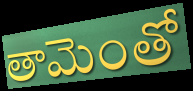
తామెంతో